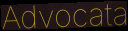
Advocata